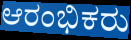
ಆರಂಭಿಕರು